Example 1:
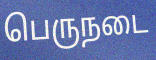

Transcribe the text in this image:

பெருநடை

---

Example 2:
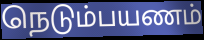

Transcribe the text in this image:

நெடும்பயணம்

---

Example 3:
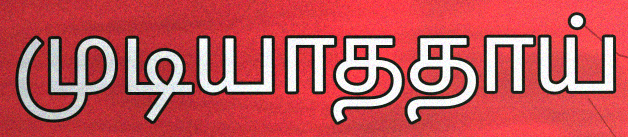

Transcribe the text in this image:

முடியாததாய்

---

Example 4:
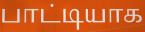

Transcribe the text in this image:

பாட்டியாக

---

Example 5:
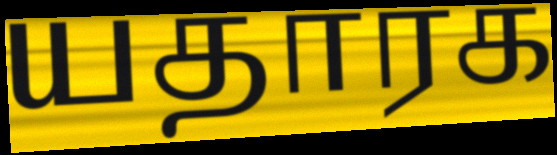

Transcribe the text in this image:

யதாரக